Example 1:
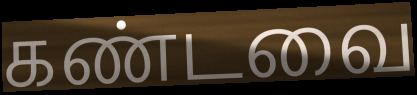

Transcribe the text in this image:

கண்டவை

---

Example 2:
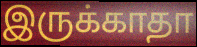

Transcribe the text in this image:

இருக்காதா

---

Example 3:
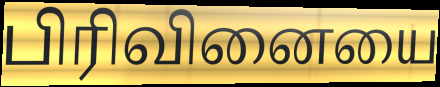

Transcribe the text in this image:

பிரிவினையை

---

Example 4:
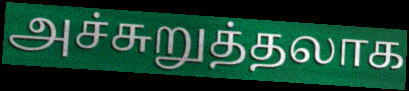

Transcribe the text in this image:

அச்சுறுத்தலாக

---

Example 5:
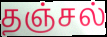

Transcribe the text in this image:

தஞ்சல்